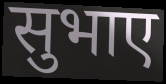
सुभाए